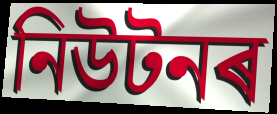
নিউটনৰ